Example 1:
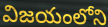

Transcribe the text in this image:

విజయంలోని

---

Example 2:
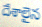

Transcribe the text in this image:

దేశాలైన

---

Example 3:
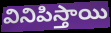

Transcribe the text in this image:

వినిపిస్తాయి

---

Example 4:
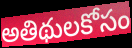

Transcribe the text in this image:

అతిథులకోసం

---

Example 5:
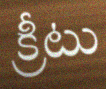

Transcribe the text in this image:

క్రీటు